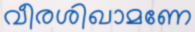
വീരശിഖാമണേ